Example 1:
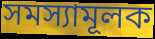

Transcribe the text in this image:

সমস্যামূলক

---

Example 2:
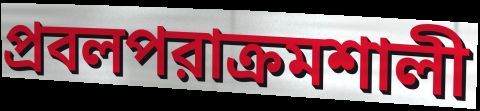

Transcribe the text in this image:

প্রবলপরাক্রমশালী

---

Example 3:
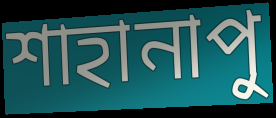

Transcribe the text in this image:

শাহানাপু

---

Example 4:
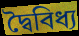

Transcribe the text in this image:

দ্বৈবিধ্য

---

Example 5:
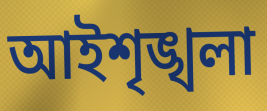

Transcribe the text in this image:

আইশৃঙ্খলা